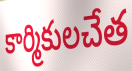
కార్మికులచేత